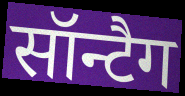
सॉन्टैग